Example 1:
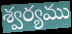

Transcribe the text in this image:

శ్వర్యము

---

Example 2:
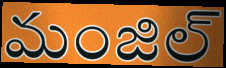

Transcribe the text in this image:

మంజిల్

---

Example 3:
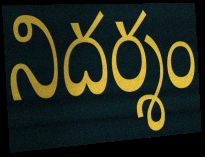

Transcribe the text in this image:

నిదర్శం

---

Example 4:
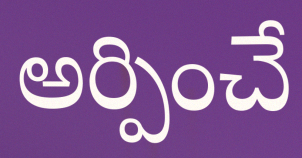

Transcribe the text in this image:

అర్పించే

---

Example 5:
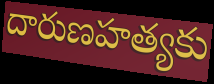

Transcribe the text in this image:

దారుణహత్యకు